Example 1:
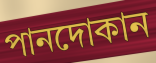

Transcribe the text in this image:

পানদোকান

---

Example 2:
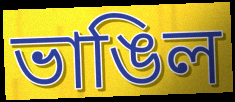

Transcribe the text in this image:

ভাঙিল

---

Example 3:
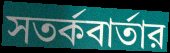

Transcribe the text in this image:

সতর্কবার্তার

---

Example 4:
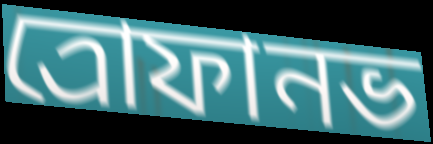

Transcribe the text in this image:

ত্রোফানভ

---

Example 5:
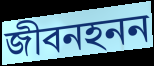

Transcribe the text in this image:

জীবনহনন